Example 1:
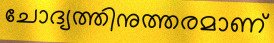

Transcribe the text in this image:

ചോദ്യത്തിനുത്തരമാണ്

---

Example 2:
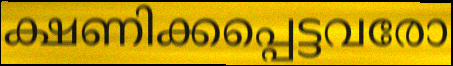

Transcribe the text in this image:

ക്ഷണിക്കപ്പെട്ടവരോ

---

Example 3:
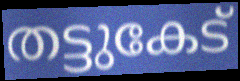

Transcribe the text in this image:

തട്ടുകേട്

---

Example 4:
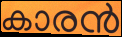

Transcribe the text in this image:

കാരൻ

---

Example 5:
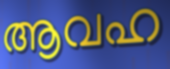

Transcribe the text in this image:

ആവഹ